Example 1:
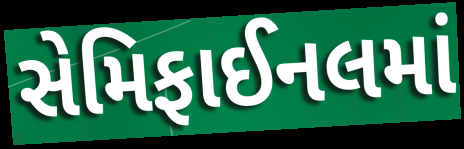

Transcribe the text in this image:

સેમિફાઈનલમાં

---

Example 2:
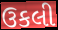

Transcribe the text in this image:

ઉકલી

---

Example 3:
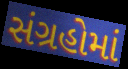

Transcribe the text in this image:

સંગ્રહોમાં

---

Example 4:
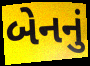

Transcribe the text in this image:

બેનનું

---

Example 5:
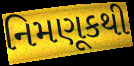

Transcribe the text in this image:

નિમણૂકથી